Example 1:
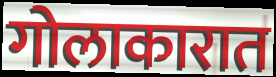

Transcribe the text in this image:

गोलाकारात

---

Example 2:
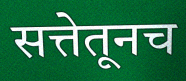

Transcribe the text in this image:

सत्तेतूनच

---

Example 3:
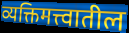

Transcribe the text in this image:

व्यक्तिमत्त्वातील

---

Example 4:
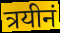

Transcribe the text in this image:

त्रयीनं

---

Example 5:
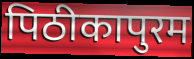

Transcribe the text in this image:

पिठीकापुरम